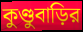
কুণ্ডুবাড়ির